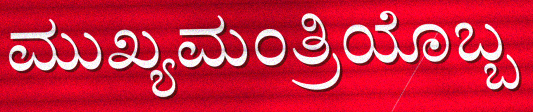
ಮುಖ್ಯಮಂತ್ರಿಯೊಬ್ಬ